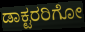
ಡಾಕ್ಟರರಿಗೋ